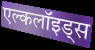
एल्कलॉइड्स